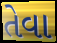
તેવા